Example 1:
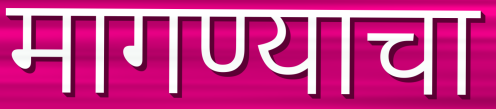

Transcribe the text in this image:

मागण्याचा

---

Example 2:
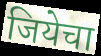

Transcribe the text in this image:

जियेचा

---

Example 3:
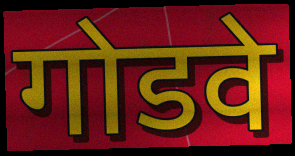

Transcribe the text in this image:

गोडवे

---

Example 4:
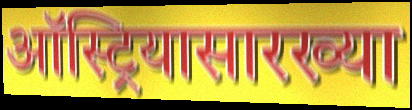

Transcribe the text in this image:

ऑस्ट्रियासारख्या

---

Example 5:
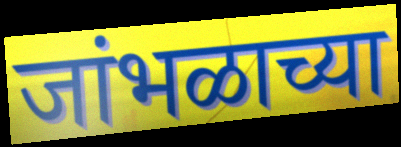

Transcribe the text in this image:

जांभळाच्या